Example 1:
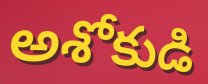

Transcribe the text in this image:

అశోకుడి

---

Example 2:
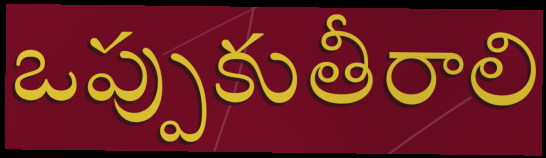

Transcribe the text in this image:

ఒప్పుకుతీరాలి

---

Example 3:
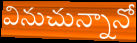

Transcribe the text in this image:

వినుచున్నానో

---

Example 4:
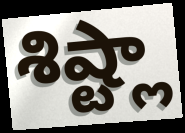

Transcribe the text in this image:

శిష్ట్లా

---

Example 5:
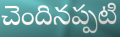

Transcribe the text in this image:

చెందినప్పటి